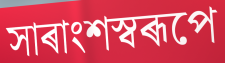
সাৰাংশস্বৰূপে